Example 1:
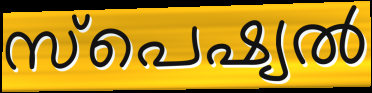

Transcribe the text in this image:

സ്പെഷ്യൽ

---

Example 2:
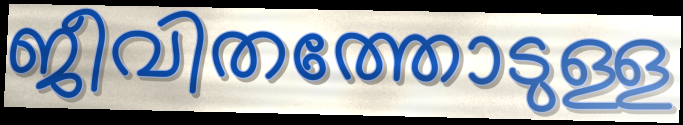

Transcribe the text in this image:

ജീവിതത്തോടുള്ള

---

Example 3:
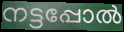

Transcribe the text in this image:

നട്ടപ്പോൽ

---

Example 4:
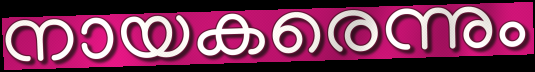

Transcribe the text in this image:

നായകരെന്നും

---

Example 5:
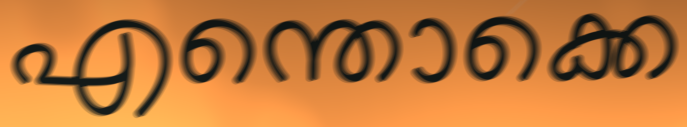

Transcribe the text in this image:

എന്തൊക്കെ